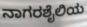
ನಾಗರಶೈಲಿಯ